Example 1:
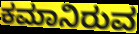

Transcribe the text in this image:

ಕಮಾನಿರುವ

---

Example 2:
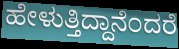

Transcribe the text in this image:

ಹೇಳುತ್ತಿದ್ದಾನೆಂದರೆ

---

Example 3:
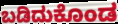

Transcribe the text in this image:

ಬಡಿದುಕೊಂಡ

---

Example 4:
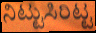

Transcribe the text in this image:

ನಿಟ್ಟುಸಿರಿಟ್ಟ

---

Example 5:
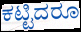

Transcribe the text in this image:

ಕಟ್ಟಿದರೂ